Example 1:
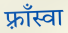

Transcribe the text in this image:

फ़्राँस्वा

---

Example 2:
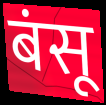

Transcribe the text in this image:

बंसू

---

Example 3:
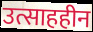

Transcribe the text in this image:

उत्साहहीन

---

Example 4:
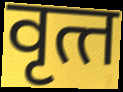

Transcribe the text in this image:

वृत्‍त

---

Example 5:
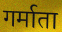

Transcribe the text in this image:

गर्माता